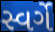
સ્વર્ગે